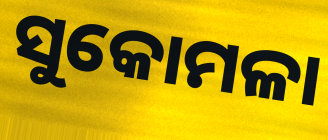
ସୁକୋମଳା